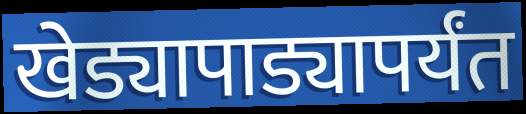
खेड्यापाड्यापर्यंत